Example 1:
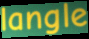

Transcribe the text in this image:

langle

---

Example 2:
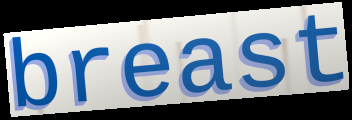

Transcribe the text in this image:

breast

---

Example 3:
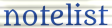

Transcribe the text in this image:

notelist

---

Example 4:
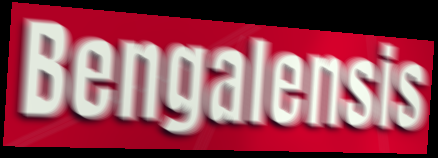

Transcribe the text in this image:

Bengalensis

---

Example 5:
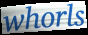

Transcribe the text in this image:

whorls